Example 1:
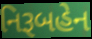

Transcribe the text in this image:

નિરૂબહેન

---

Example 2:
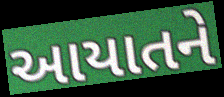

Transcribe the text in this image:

આયાતને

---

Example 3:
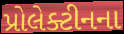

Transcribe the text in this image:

પ્રોલેક્ટીનના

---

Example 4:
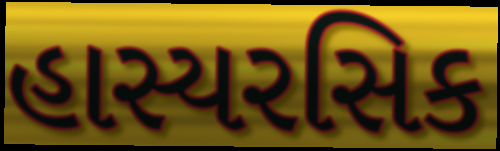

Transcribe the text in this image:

હાસ્યરસિક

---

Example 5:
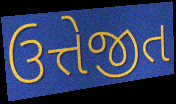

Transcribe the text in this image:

ઉત્તેજીત